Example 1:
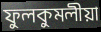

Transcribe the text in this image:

ফুলকুমলীয়া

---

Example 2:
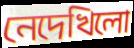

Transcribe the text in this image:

নেদেখিলো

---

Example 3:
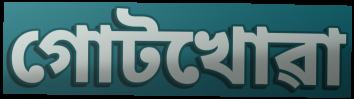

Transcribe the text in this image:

গোটখোৱা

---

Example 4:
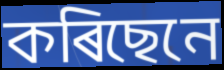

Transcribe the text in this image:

কৰিছেনে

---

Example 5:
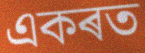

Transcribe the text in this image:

একৰত